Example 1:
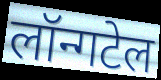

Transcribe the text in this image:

लॉन्गटेल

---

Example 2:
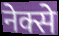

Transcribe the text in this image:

नेक्से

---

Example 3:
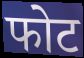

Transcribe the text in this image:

फोट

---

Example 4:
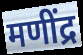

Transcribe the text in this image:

मणींद्र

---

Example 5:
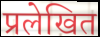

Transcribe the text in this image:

प्रलेखित